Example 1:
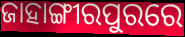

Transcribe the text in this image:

ଜାହାଙ୍ଗୀରପୁରରେ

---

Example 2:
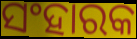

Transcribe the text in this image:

ସଂହାରକ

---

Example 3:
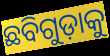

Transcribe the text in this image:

ଛବିଗୁଡ଼ାକୁ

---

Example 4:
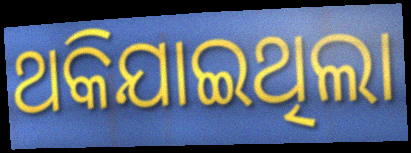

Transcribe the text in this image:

ଥକିଯାଇଥିଲା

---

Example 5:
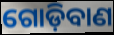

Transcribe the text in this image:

ଗୋଡ଼ିବାଣ